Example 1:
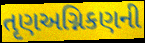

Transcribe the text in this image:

તૃણઅગ્નિકણની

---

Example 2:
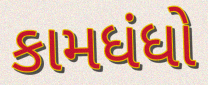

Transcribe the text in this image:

કામધંધો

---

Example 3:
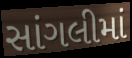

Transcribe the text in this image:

સાંગલીમાં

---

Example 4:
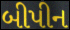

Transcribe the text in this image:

બીપીન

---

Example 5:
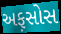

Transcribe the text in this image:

અફ઼સોસ